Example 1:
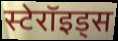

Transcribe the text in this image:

स्टेरॉइड्स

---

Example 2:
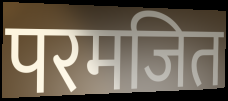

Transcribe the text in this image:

परमजित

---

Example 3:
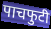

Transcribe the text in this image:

पाचफुटी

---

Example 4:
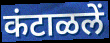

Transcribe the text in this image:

कंटाळलें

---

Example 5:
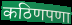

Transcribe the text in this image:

कठिणपणा